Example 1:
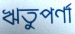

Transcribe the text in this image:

ঋতুপর্ণা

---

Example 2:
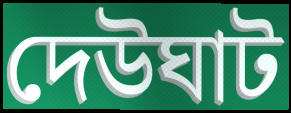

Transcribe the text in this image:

দেউঘাট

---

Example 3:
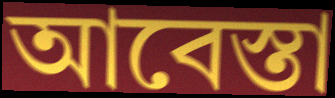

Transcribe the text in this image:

আবেস্তা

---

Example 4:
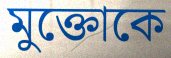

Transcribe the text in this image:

মুক্তোকে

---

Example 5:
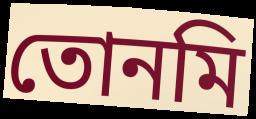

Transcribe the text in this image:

তোনমি